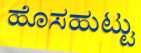
ಹೊಸಹುಟ್ಟು